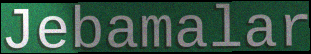
Jebamalar